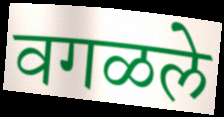
वगळले